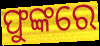
ଫୁଙ୍କରେ